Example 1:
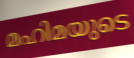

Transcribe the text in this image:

മഹിമയുടെ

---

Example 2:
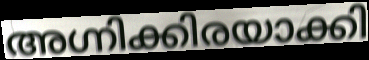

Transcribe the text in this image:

അഗ്നിക്കിരയാക്കി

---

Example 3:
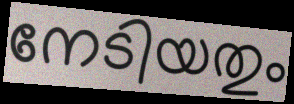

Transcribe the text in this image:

നേടിയതും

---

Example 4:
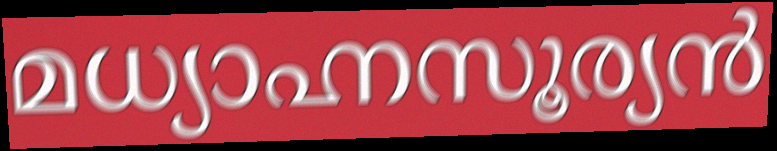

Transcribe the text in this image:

മധ്യാഹ്നസൂര്യൻ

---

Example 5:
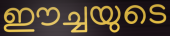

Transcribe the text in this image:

ഈച്ചയുടെ